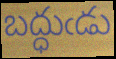
బద్ధుఁడు